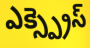
ఎక్స్ప్రెస్